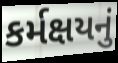
કર્મક્ષયનું